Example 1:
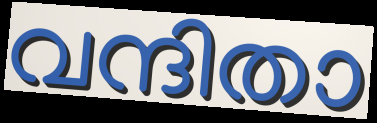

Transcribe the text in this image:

വന്ദിതാ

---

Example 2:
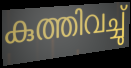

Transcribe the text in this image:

കുത്തിവച്ചു്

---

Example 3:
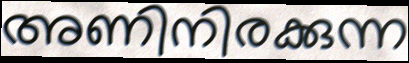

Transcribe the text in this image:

അണിനിരക്കുന്ന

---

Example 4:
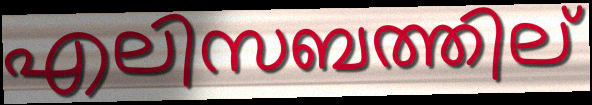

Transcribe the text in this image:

എലിസബത്തില്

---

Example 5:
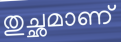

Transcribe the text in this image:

തുച്ഛമാണ്